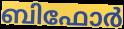
ബിഫോർ